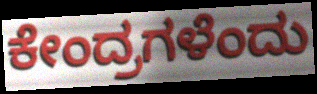
ಕೇಂದ್ರಗಳೆಂದು